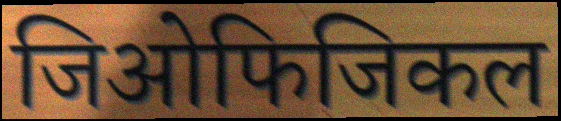
जिओफिजिकल